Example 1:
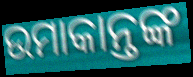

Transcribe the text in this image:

ଉମାକାନ୍ତଙ୍କ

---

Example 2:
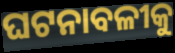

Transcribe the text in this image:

ଘଟନାବଳୀକୁ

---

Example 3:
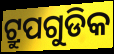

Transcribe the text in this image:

ଟ୍ରୁପଗୁଡିକ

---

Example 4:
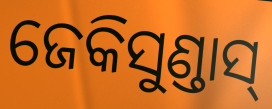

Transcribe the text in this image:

ଜେକିସୁଣ୍ଡାସ୍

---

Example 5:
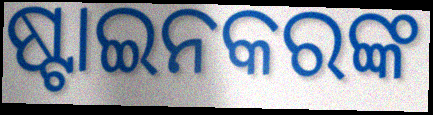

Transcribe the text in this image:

ଷ୍ଟାଇନକରଙ୍କ